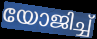
യോജിച്ച്